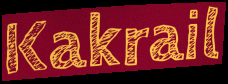
Kakrail